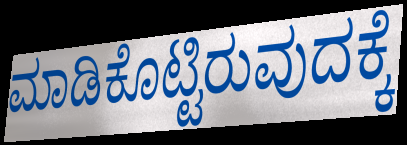
ಮಾಡಿಕೊಟ್ಟಿರುವುದಕ್ಕೆ